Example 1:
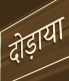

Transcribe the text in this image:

दोड़ाया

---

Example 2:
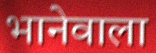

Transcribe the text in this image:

भानेवाला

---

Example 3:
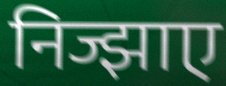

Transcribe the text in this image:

निज्झाए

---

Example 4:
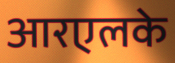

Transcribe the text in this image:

आरएलके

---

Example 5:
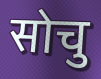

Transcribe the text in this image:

सोचु